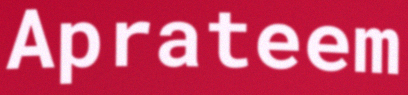
Aprateem